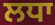
ਲਧਾ